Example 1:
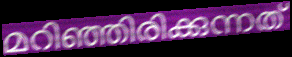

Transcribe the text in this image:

മറിഞ്ഞിരിക്കുന്നത്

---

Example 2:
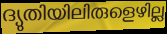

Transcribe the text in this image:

ദ്യുതിയിലിരുളെഴില്ല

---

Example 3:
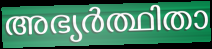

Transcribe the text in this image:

അഭ്യർത്ഥിതാ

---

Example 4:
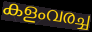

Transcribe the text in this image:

കളംവരച്ച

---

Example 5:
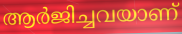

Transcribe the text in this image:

ആർജിച്ചവയാണ്